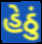
હેઠું